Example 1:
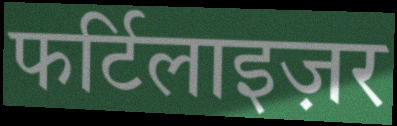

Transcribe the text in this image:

फर्टिलाइज़र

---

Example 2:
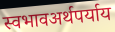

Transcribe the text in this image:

स्वभावअर्थपर्याय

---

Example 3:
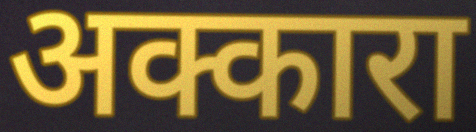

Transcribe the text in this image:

अक्कारा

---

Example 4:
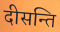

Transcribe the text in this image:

दीसन्ति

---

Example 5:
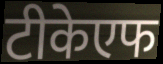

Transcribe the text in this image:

टीकेएफ